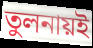
তুলনায়ই